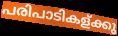
പരിപാടികള്ക്കു